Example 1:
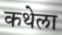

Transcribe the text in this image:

कथेला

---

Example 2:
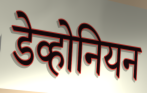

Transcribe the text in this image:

डेव्होनियन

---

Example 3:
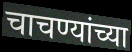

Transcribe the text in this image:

चाचण्यांच्या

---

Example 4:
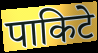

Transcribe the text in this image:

पाकिटे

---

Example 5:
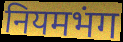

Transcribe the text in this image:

नियमभंग